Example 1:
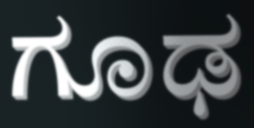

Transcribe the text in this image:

ಗೂಢ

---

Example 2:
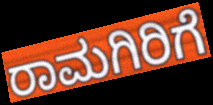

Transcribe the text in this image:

ರಾಮಗಿರಿಗೆ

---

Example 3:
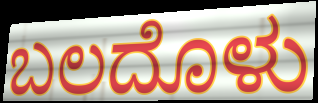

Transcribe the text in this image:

ಬಲದೊಳು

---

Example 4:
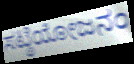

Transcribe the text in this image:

ಸಟ್ಠಿಯೋಜನಂ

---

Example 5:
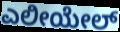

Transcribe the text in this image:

ಎಲೀಯೇಲ್